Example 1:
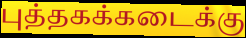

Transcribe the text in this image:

புத்தகக்கடைக்கு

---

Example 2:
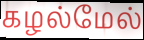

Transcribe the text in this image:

கழல்மேல்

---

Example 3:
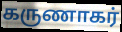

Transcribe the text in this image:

கருணாகர்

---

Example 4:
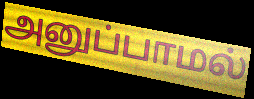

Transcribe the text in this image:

அனுப்பாமல்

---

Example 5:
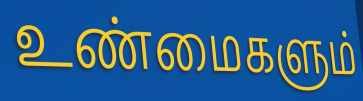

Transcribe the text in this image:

உண்மைகளும்